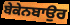
ਬੇਕੇਨਬਾਉਰ